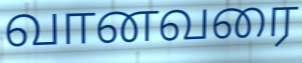
வானவரை